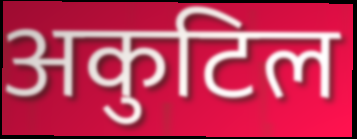
अकुटिल